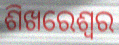
ଶିଖରେଶ୍ୱର